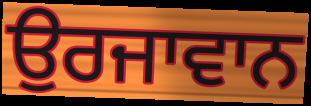
ਉਰਜਾਵਾਨ